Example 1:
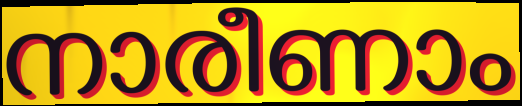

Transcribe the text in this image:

നാരീണാം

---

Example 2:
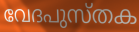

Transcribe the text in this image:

വേദപുസ്തക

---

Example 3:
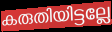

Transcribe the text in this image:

കരുതിയിട്ടല്ലേ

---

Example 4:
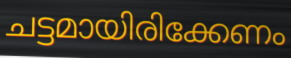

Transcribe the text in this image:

ചട്ടമായിരിക്കേണം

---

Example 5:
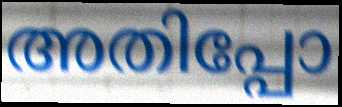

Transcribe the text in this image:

അതിപ്പോ